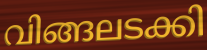
വിങ്ങലടക്കി